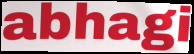
abhagi